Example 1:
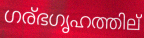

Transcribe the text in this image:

ഗര്ഭഗൃഹത്തില്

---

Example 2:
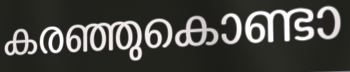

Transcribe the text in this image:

കരഞ്ഞുകൊണ്ടാ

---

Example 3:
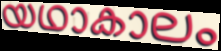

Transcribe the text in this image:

യഥാകാലം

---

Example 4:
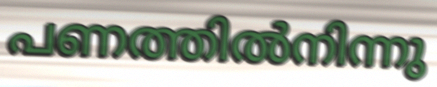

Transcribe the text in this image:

പണത്തിൽനിന്നു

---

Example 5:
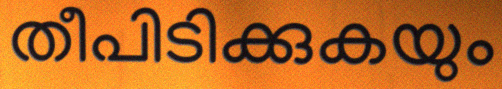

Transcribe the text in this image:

തീപിടിക്കുകയും